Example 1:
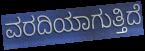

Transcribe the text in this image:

ವರದಿಯಾಗುತ್ತಿದೆ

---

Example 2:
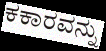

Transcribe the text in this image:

ಕಕಾರವನ್ನು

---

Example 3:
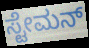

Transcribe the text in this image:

ಸ್ಟೇಮನ್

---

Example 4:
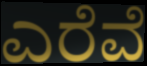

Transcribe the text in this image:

ಎರೆವೆ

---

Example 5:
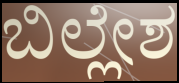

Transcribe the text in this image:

ಬಿಲ್ಲೇಶ